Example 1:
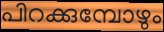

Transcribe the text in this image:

പിറക്കുമ്പോഴും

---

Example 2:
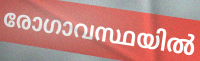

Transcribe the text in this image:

രോഗാവസ്ഥയിൽ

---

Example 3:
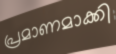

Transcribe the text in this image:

പ്രമാണമാക്കി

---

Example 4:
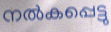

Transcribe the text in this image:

നൽകപ്പെട്ടു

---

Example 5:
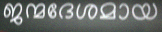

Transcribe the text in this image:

ജന്മദേശമായ